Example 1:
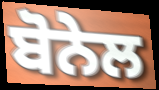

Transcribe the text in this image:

ਬੋਨੇਲ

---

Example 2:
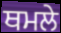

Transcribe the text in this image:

ਥਮਲੇ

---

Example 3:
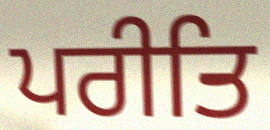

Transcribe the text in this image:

ਪਰੀਤਿ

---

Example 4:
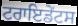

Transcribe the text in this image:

ਟਰਾਇਡੇਂਟਸ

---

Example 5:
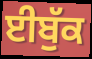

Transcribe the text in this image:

ਈਬੁੱਕ